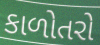
કાળોતરો